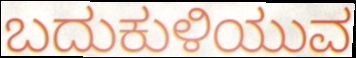
ಬದುಕುಳಿಯುವ